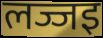
लज्जइ